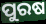
ପୁରଷ